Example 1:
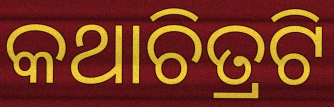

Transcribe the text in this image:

କଥାଚିତ୍ରଟି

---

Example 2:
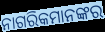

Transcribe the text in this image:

ନାଗରିକମାନଙ୍କର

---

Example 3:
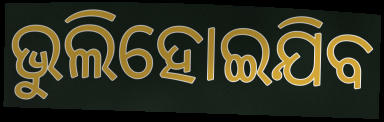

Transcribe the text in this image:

ଭୁଲିହୋଇଯିବ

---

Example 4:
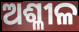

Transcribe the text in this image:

ଅଶ୍ଳୀଳ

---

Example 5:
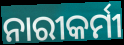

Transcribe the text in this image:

ନାରୀକର୍ମୀ